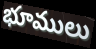
భూములు